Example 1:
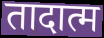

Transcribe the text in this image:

तादात्म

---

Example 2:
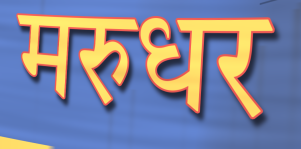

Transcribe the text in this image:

मरुधर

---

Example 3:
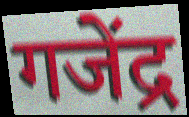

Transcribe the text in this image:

गजेंद्र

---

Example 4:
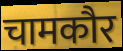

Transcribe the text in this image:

चामकौर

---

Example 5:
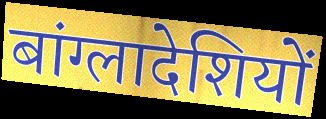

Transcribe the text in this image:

बांग्लादेशियों